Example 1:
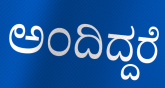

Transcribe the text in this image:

ಅಂದಿದ್ದರೆ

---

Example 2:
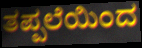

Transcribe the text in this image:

ತಪ್ಪಲೆಯಿಂದ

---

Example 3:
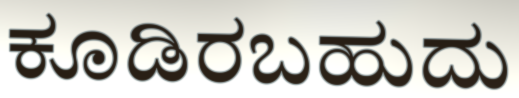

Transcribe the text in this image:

ಕೂಡಿರಬಹುದು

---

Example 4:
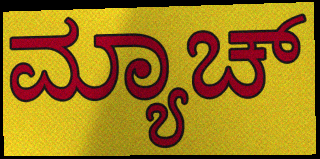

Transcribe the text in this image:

ಮ್ಯಾಚ್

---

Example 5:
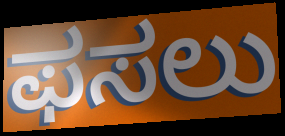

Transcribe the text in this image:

ಫಸಲು